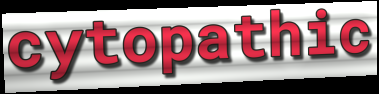
cytopathic